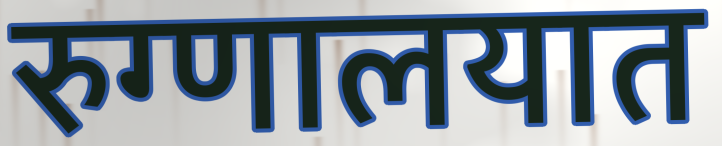
रुग्णालयात